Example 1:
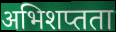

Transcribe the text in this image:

अभिशप्तता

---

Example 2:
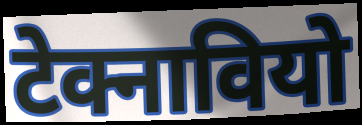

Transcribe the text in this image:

टेक्नावियो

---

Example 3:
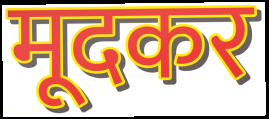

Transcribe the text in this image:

मूदकर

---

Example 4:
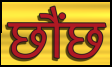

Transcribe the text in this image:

छौंछ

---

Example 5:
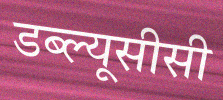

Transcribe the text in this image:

डब्ल्यूसीसी